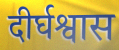
दीर्घश्वास